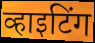
व्हाइटिंग